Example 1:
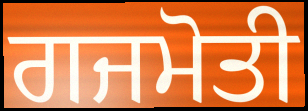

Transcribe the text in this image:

ਗਜਮੋਤੀ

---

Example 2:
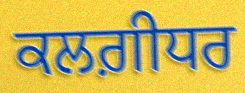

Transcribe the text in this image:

ਕਲਗ਼ੀਧਰ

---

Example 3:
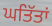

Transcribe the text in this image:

ਘਤਿੱਤਾਂ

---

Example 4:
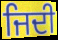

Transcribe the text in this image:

ਜਿਦੀ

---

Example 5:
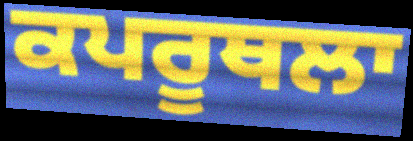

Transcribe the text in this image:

ਕਪਰੂਥਲਾ